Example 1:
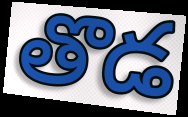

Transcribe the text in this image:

తొడ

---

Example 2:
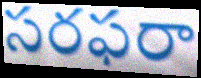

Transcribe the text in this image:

సరఫరా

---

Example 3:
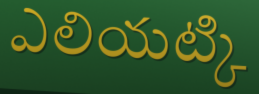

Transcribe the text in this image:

ఎలియట్కి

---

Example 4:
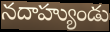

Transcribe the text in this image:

నదాహ్యుండు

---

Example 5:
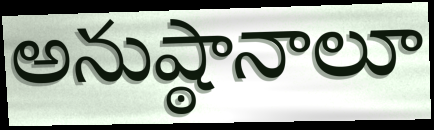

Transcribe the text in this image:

అనుష్ఠానాలూ